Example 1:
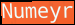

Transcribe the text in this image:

Numeyr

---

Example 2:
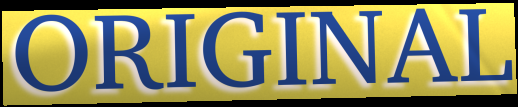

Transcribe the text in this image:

ORIGINAL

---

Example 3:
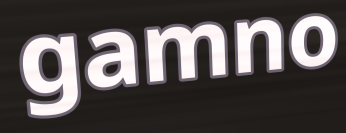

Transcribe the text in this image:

gamno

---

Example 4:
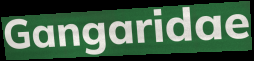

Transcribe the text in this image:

Gangaridae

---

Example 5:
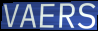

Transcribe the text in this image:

VAERS